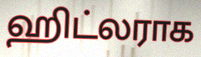
ஹிட்லராக